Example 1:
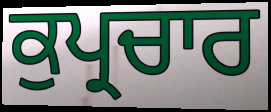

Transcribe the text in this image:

ਕੁਪ੍ਰਚਾਰ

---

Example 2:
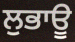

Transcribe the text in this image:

ਲੁਭਾਊ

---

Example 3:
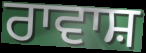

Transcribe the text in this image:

ਰਾਵਾਸ਼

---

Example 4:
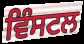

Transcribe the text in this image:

ਵਿੰਸਟਲ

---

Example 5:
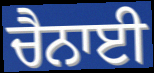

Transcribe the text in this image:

ਚੈਨਾਈ